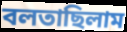
বলতাছিলাম